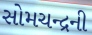
સોમચન્દ્રની